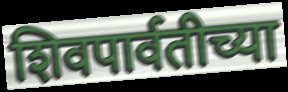
शिवपार्वतीच्या